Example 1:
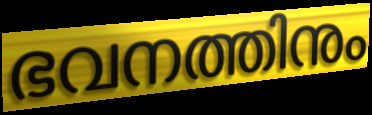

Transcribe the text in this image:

ഭവനത്തിനും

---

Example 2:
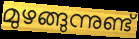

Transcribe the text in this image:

മുഴങ്ങുന്നുണ്ട്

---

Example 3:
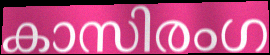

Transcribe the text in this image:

കാസിരംഗ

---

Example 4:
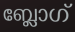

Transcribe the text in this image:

ബ്ലോഗ്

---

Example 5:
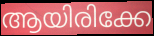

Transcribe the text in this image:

ആയിരിക്കേ